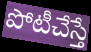
పోటీచేస్తే